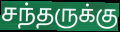
சந்தருக்கு